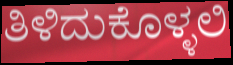
ತಿಳಿದುಕೊಳ್ಳಲಿ